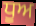
ਧੂਅ